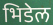
भिडेल